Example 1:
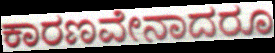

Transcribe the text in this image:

ಕಾರಣವೇನಾದರೂ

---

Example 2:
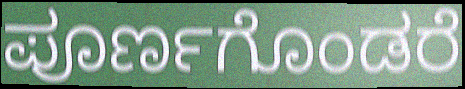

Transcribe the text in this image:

ಪೂರ್ಣಗೊಂಡರೆ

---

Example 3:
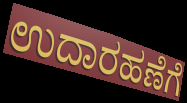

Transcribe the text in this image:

ಉದಾರಹಣೆಗೆ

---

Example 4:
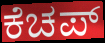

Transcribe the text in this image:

ಕೆಚಪ್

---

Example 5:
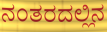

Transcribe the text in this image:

ನಂತರದಲ್ಲಿನ